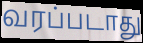
வரப்படாது